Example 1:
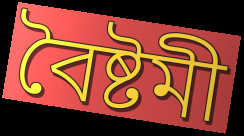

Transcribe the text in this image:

বৈষ্টমী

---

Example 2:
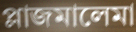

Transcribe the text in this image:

প্লাজমালেমা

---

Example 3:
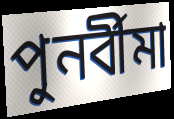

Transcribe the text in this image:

পুনর্বীমা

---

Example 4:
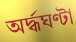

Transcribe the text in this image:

অর্দ্ধঘণ্টা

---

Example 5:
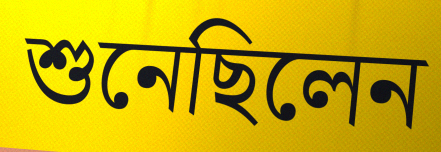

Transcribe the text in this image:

শুনেছিলেন